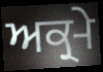
ਅਕ੍ਰ੍ਮੇ